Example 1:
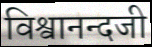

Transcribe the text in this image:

विश्वानन्दजी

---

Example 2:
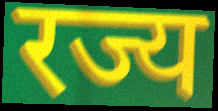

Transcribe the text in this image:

रज्य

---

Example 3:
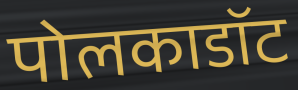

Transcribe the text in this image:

पोलकाडॉट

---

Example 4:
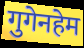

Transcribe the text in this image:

गुगेनहेम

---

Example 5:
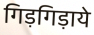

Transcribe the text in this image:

गिड़गिड़ाये